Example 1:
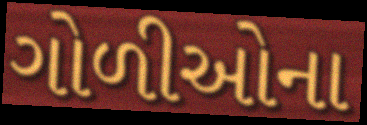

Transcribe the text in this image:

ગોળીઓના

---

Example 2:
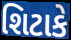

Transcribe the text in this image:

શિટાકે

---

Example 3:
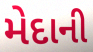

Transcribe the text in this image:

મેદાની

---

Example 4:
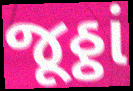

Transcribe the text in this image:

જૂઠ્ઠાં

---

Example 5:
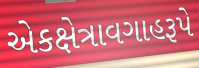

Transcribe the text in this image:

એકક્ષેત્રાવગાહરૂપે